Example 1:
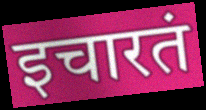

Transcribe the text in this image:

इचारतं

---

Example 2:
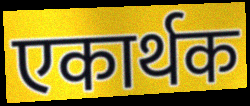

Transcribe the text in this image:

एकार्थक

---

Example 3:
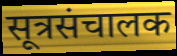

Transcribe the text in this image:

सूत्रसंचालक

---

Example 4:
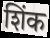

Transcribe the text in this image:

शिंक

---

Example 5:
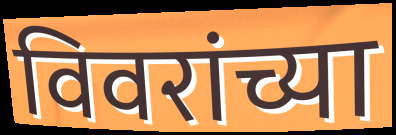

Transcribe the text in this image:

विवरांच्या